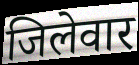
जिलेवार